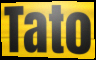
Tato